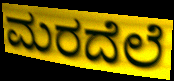
ಮರದೆಲೆ